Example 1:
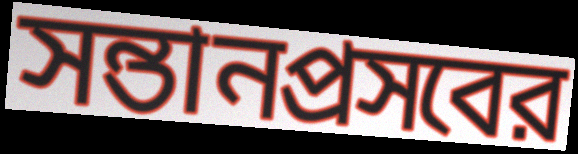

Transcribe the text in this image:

সন্তানপ্রসবের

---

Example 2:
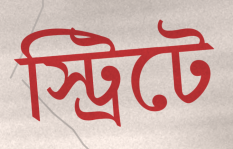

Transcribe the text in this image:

স্ট্রিটে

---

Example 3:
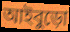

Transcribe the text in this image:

আইবুড়ো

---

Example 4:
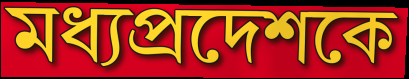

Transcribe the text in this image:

মধ্যপ্রদেশকে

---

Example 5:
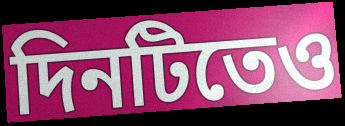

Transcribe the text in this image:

দিনটিতেও